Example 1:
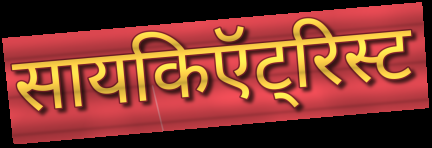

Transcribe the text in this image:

सायकिऍट्रिस्ट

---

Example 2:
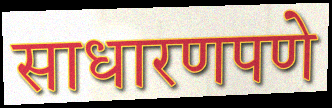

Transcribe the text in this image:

साधारणपणे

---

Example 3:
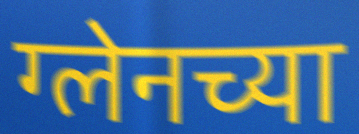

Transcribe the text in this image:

ग्लेनच्या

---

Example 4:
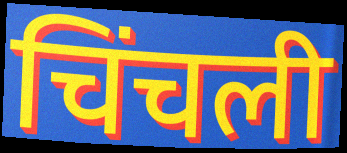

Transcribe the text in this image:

चिंचली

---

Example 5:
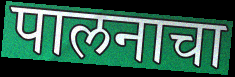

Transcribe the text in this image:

पालनाचा